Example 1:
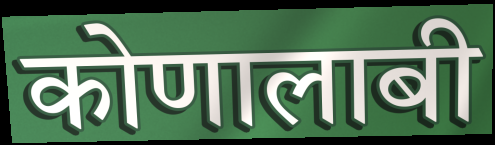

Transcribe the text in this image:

कोणालाबी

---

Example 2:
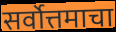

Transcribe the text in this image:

सर्वोत्तमाचा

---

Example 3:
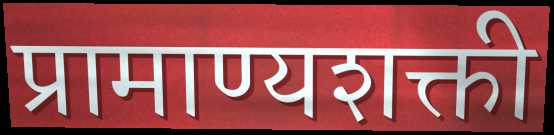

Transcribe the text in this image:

प्रामाण्यशक्ती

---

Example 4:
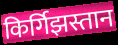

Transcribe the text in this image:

किर्गिझस्तान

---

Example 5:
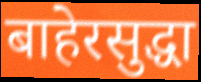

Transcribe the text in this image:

बाहेरसुद्धा